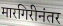
मारगिरीनंतर